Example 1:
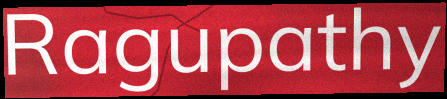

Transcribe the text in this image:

Ragupathy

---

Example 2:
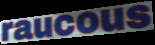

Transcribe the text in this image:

raucous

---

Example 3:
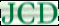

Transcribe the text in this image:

JCD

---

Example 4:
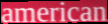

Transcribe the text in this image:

american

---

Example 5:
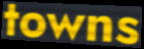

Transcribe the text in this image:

towns